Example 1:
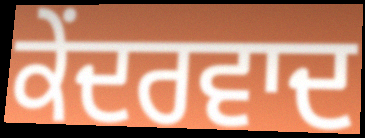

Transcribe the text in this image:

ਕੇਂਦਰਵਾਦ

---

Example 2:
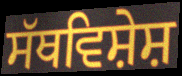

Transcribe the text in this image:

ਸੱਥਵਿਸ਼ੇਸ਼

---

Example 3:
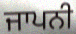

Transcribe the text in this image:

ਜਾਪਨੀ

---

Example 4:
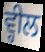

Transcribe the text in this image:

ਵ੍ਹੀਲ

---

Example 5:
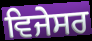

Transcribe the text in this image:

ਵਿਜੇਸਰ